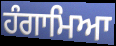
ਹੰਗਾਮਿਆ